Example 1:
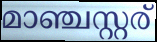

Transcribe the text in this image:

മാഞ്ചസ്റ്റര്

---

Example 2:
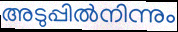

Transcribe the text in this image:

അടുപ്പിൽനിന്നും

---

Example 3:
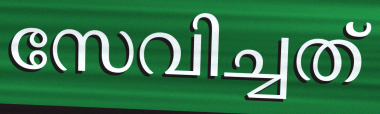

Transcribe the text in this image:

സേവിച്ചത്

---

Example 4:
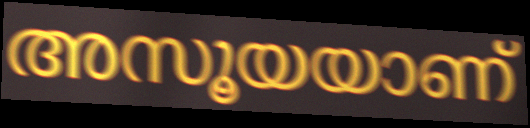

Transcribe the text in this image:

അസൂയയാണ്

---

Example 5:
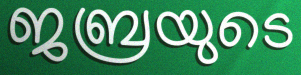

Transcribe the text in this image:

ജബ്രയുടെ